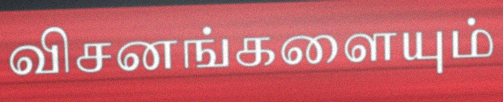
விசனங்களையும்